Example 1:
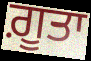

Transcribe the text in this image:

ਗ਼ੂਤਾ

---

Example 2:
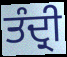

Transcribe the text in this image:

ਤੰਦ੍ਰੀ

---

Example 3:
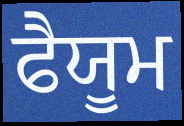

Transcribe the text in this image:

ਫੈਯੂਮ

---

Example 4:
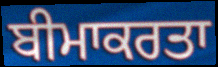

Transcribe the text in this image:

ਬੀਮਾਕਰਤਾ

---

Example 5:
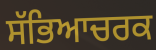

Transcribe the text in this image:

ਸੱਭਿਆਚਰਕ